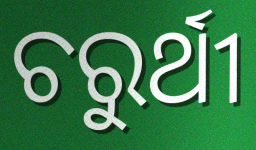
ଚରୁର୍ଥୀ